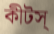
কীটস্